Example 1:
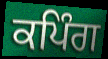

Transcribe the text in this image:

ਕਪਿੰਗ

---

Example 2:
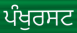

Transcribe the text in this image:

ਪੰਖੁਰਸਟ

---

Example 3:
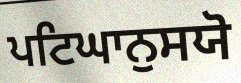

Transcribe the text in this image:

ਪਟਿਘਾਨੁਸਯੋ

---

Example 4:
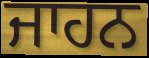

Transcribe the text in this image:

ਜਾਹਨ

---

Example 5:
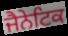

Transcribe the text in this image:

ਜੈਨੇਟਿਕ